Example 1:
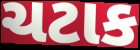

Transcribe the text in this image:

ચટાક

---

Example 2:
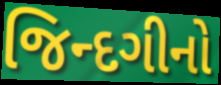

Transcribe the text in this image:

જિન્દગીનો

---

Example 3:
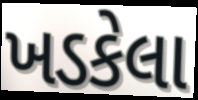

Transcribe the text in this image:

ખડકેલા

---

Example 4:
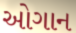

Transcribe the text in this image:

ઓગાન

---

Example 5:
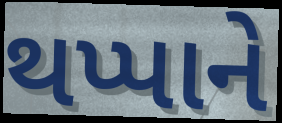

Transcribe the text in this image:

થપ્પાને